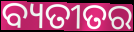
ବ୍ୟତୀତର